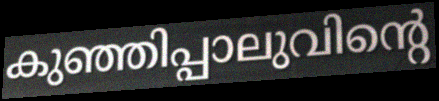
കുഞ്ഞിപ്പാലുവിന്റെ